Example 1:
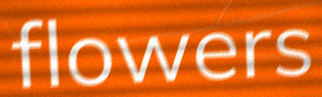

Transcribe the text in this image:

flowers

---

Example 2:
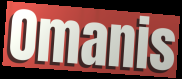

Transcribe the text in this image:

Omanis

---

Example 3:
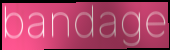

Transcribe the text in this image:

bandage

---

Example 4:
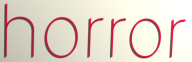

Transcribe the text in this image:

horror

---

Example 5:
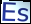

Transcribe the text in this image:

Es